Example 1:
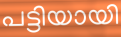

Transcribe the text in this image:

പട്ടിയായി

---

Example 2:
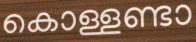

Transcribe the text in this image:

കൊള്ളണ്ടാ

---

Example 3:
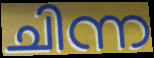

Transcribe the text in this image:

ചിന്ന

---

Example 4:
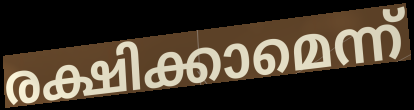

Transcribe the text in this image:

രക്ഷിക്കാമെന്ന്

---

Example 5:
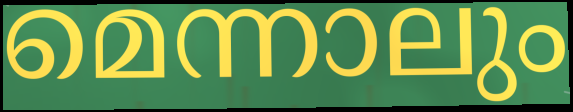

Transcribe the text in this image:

മെന്നാലും